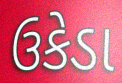
ઉકેડા